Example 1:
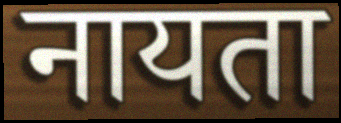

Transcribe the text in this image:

नायता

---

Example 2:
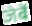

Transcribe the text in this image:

जेबें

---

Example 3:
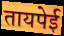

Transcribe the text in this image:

तायपेई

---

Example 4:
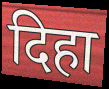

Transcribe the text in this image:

दिहा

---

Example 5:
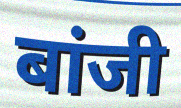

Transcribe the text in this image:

बांजी